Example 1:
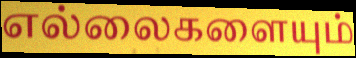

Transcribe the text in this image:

எல்லைகளையும்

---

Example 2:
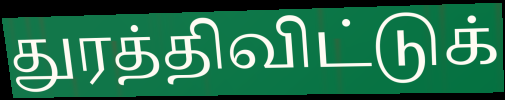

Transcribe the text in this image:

துரத்திவிட்டுக்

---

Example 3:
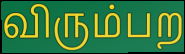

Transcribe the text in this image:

விரும்பற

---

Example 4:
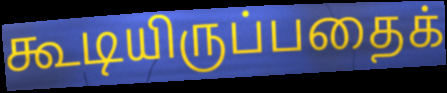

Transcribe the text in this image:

கூடியிருப்பதைக்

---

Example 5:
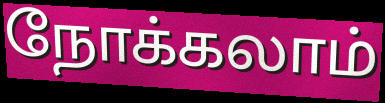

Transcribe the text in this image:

நோக்கலாம்